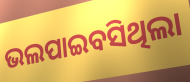
ଭଲପାଇବସିଥିଲା